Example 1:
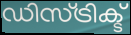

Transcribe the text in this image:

ഡിസ്ട്രിക്ട്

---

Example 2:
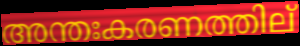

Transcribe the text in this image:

അന്തഃകരണത്തില്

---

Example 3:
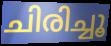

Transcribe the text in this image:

ചിരിച്ചൂ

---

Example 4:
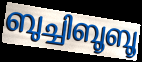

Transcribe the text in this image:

ബുച്ചിബൂബൂ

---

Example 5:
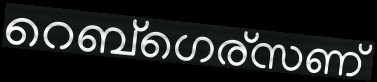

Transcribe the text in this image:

റെബ്ഗെര്സണ്